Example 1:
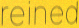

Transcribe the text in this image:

reined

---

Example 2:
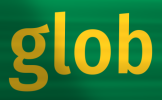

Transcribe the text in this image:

glob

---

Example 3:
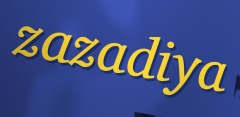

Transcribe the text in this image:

zazadiya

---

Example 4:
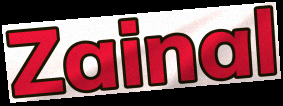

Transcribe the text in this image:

Zainal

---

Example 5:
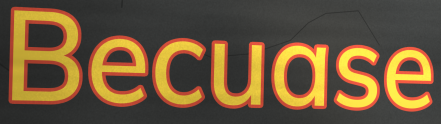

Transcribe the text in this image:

Becuase